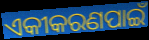
ଏକୀକରଣପାଇଁ